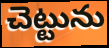
చెట్టును